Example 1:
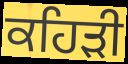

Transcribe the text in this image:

ਕਹਿੜੀ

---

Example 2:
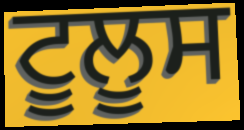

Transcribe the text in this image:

ਟੂਲੂਸ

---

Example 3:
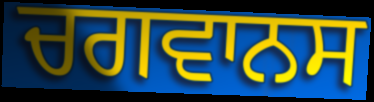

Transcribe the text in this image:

ਚਗਵਾਨਸ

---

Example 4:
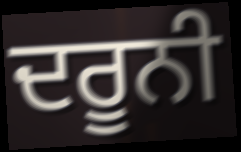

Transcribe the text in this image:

ਦਰੂਨੀ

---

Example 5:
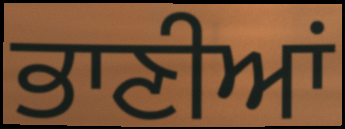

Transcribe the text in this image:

ਭਾਣੀਆਂ